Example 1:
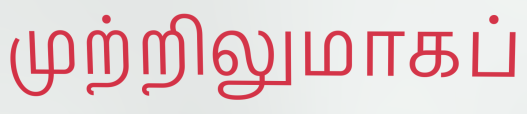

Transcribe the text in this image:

முற்றிலுமாகப்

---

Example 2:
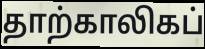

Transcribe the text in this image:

தாற்காலிகப்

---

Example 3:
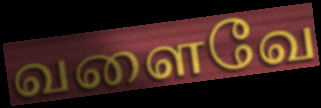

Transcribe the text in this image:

வளைவே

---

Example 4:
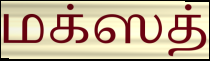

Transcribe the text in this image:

மக்ஸத்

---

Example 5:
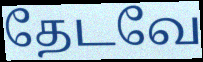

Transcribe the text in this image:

தேடவே